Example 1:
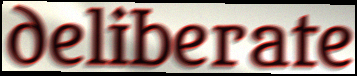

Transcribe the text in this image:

deliberate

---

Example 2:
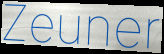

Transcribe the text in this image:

Zeuner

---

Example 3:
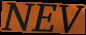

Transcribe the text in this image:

NEV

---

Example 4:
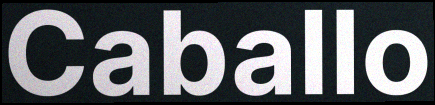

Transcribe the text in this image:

Caballo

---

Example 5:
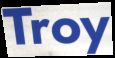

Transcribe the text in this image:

Troy